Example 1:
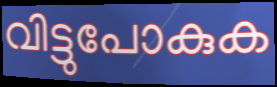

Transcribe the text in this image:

വിട്ടുപോകുക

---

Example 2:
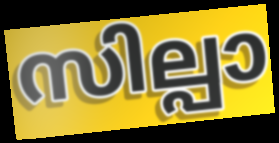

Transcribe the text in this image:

സില്പാ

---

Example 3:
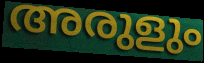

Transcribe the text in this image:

അരുളും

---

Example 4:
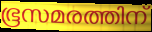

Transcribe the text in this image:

ഭൂസമരത്തിന്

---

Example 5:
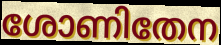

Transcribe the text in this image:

ശോണിതേന